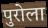
पुरोला